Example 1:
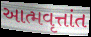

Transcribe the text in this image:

આત્મવૃત્તાંત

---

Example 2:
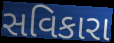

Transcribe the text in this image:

સવિકારા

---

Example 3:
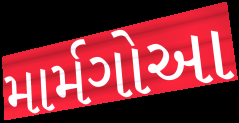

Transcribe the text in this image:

માર્મગોઆ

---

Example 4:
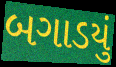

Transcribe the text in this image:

બગાડયું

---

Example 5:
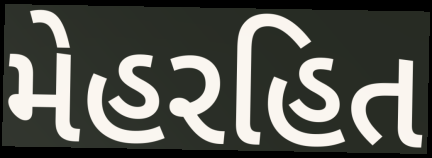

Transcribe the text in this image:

મેહરહિત